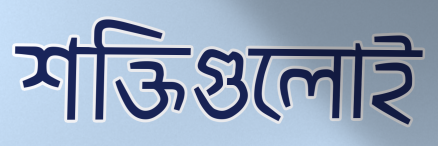
শক্তিগুলোই